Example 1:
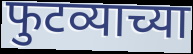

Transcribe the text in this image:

फुटव्याच्या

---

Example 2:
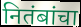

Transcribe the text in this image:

नितंबांचा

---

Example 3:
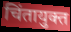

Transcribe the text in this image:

चिंतायुक्त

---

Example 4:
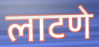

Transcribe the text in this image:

लाटणे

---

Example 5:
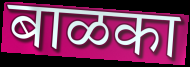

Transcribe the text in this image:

बाळका